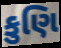
કુણિ